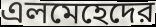
এলমেহেদের